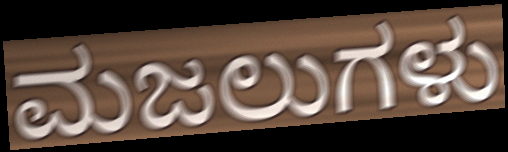
ಮಜಲುಗಳು